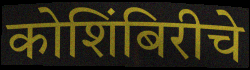
कोशिंबिरीचे